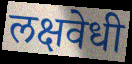
लक्षवेधी